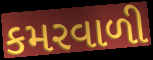
કમરવાળી